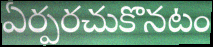
ఏర్పరచుకొనటం